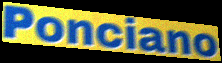
Ponciano